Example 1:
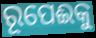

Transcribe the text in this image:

ରୂପେଈକୁ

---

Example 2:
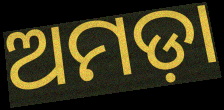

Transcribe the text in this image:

ଅମଡ଼ା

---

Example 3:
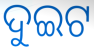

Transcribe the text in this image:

ଦୁଇଟ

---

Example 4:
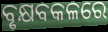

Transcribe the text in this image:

ବୃକ୍ଷବକଳରେ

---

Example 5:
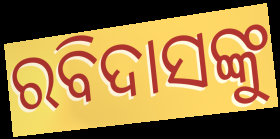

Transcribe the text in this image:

ରବିଦାସଙ୍କୁ